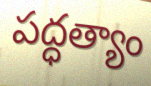
పద్ధత్యాం